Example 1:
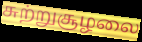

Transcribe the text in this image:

சுற்றுசூழலை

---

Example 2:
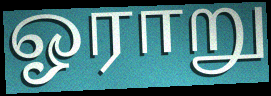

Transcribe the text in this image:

ஓராறு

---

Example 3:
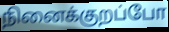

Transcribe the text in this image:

நினைக்குறப்போ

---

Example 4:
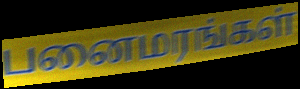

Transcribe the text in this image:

பனைமரங்கள்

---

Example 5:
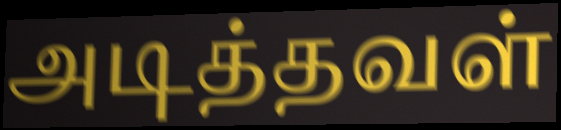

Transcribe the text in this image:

அடித்தவள்